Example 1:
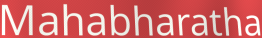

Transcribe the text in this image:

Mahabharatha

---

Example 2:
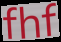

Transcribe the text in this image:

fhf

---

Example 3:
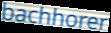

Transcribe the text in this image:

bachhorer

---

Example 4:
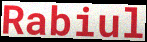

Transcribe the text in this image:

Rabiul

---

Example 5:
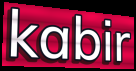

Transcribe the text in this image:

kabir